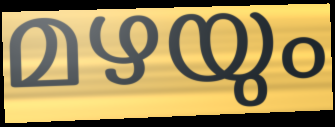
മഴയും